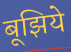
बूझिये